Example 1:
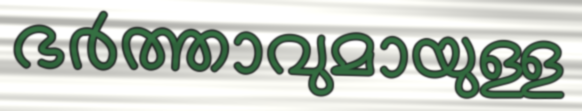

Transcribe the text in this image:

ഭർത്താവുമായുള്ള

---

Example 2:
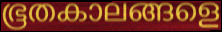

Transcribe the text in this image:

ഭൂതകാലങ്ങളെ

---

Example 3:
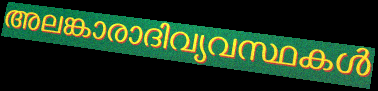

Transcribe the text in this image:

അലങ്കാരാദിവ്യവസ്ഥകൾ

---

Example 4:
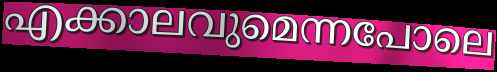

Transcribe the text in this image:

എക്കാലവുമെന്നപോലെ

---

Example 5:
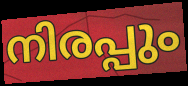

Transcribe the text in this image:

നിരപ്പും